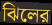
ঝিলের